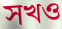
সখও